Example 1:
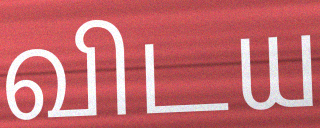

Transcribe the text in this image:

விடய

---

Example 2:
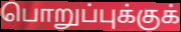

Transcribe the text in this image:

பொறுப்புக்குக்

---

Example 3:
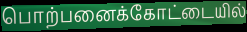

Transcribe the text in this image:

பொற்பனைக்கோட்டையில்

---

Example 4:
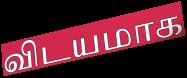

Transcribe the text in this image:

விடயமாக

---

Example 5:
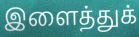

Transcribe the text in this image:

இளைத்துக்